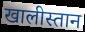
खालीस्तान